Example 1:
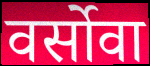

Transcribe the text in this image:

वर्सोवा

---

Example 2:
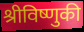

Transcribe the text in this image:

श्रीविष्णुकी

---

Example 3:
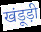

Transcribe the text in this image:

खंड़ूड़ी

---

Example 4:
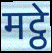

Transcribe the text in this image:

मट्ठे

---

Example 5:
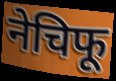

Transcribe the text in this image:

नेचिफू